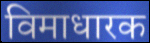
विमाधारक